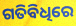
ଗତିବିଧିରେ